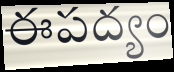
ఈపద్యం